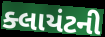
ક્લાયંટની